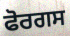
ਫੋਰਗਸ